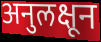
अनुलक्षून